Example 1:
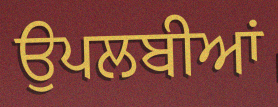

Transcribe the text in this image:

ਉਪਲਬੀਆਂ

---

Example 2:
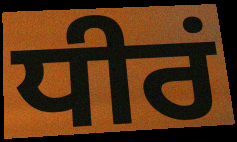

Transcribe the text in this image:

ਧੀਰਂ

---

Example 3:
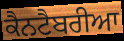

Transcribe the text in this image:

ਕੈਨਟੈਬਰੀਆ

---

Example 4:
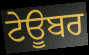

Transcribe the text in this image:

ਟੇਊਬਰ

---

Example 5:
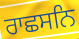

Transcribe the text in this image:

ਰਾਛਸਨਿ